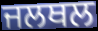
ਜਲਥਲ